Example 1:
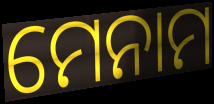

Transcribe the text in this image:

ମେନାମ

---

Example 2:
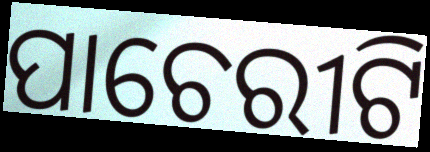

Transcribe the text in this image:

ପାଚେରୀଟି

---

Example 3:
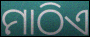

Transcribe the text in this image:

ମାଠିଏ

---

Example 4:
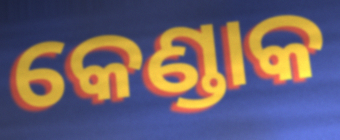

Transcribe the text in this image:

କେଣ୍ଡାକ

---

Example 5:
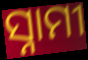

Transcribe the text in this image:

ସ୍ନାମୀ